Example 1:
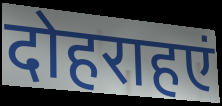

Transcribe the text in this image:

दोहराहएं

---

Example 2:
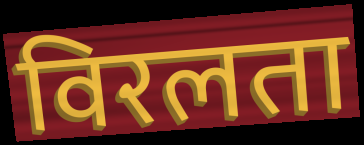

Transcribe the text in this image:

विरलता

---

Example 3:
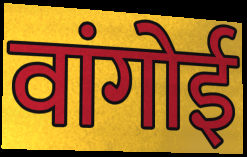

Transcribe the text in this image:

वांगोई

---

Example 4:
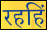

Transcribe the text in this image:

रहहिं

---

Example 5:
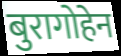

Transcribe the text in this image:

बुरागोहेन